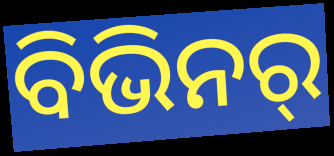
ବିଭିନର୍